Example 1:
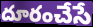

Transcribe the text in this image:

దూరంచేసే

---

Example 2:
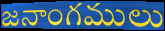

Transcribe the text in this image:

జనాంగములు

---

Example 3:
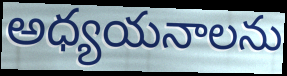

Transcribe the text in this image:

అధ్యయనాలను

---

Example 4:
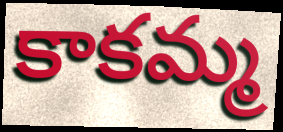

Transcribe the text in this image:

కాకమ్మ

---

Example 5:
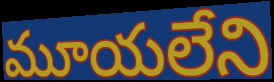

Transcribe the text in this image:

మూయలేని